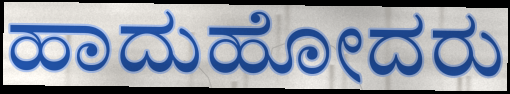
ಹಾದುಹೋದರು